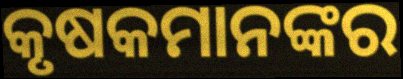
କୃଷକମାନଙ୍କର